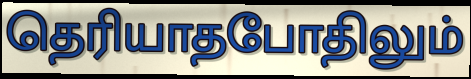
தெரியாதபோதிலும்